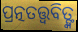
ପ୍ରତ୍ନତତ୍ତ୍ୱବିତ୍ଙ୍କ